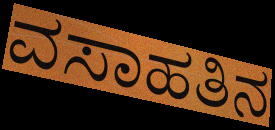
ವಸಾಹತಿನ